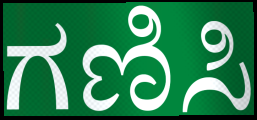
ಗಣಿಸಿ